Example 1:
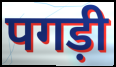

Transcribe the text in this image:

पगड़ी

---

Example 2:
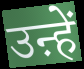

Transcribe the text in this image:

उऩ्हें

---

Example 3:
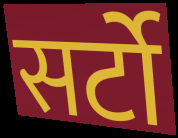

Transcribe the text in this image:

सर्टो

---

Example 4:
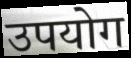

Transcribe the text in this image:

उपयोग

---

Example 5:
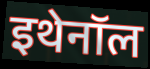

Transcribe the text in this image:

इथेनॉल